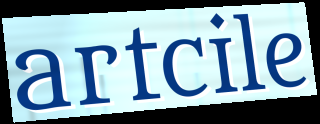
artcile